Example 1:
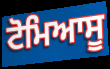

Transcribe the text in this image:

ਟੋਮਿਆਸੂ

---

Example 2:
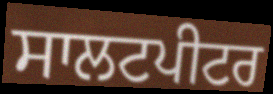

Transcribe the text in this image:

ਸਾਲਟਪੀਟਰ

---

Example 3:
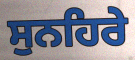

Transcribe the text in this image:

ਸੁਨਹਿਰੇ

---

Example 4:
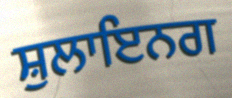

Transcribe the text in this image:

ਸ਼ੁਲਾਇਨਗ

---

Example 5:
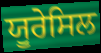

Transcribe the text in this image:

ਯੂਰੇਸਿਲ